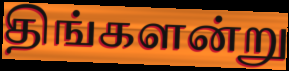
திங்களன்று